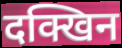
दक्खिन